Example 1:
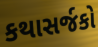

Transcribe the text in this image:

કથાસર્જકો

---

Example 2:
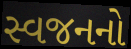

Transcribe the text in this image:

સ્વજનનો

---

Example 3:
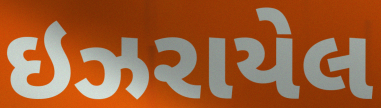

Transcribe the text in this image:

ઇઝરાયેલ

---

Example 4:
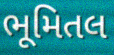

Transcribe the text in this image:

ભૂમિતલ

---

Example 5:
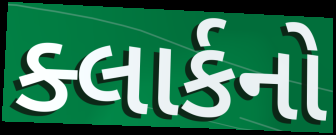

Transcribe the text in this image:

ક્લાર્કનો